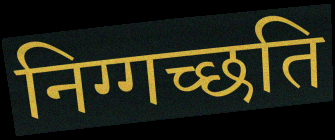
निग्गच्छति